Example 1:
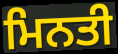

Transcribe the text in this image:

ਮਿਨਤੀ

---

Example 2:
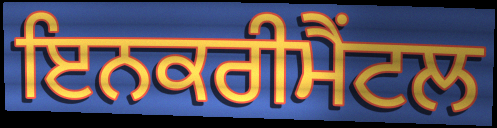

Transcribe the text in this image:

ਇਨਕਰੀਮੈਂਟਲ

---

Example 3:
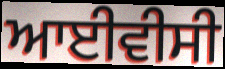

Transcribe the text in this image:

ਆਈਵੀਸੀ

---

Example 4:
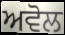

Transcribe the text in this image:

ਅਵੋਲ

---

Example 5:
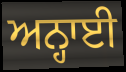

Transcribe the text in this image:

ਅਨ੍ਹਾਈ